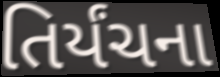
તિર્યંચના